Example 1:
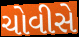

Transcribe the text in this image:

ચોવીસે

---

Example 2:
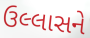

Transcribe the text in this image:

ઉલ્લાસને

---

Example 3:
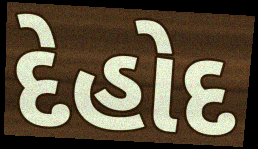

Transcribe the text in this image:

દેહોદ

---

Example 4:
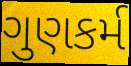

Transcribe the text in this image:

ગુણકર્મ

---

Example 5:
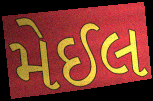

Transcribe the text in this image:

મેઈલ